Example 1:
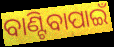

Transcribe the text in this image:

ବାଣ୍ଟିବାପାଇଁ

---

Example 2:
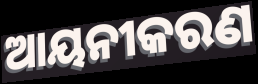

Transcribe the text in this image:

ଆୟନୀକରଣ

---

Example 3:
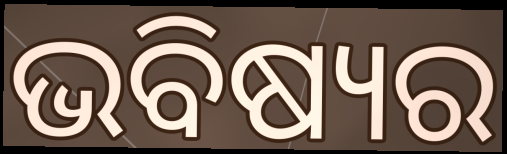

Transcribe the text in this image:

ଭବିଷ୍ୟର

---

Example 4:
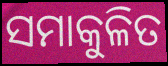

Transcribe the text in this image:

ସମାକୁଳିତ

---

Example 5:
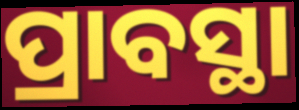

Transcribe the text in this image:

ପ୍ରାବସ୍ଥା